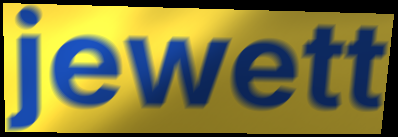
jewett